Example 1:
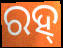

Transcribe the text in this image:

ରହ୍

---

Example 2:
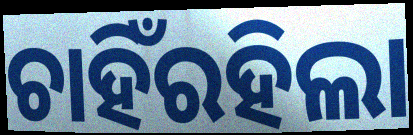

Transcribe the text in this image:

ଚାହିଁରହିଲା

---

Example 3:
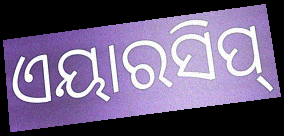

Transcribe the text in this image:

ଏୟାରସିପ୍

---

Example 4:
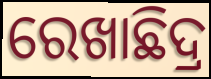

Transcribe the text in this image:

ରେଖାଛିଦ୍ର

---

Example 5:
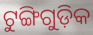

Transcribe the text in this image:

ଟୁଙ୍ଗିଗୁଡ଼ିକ